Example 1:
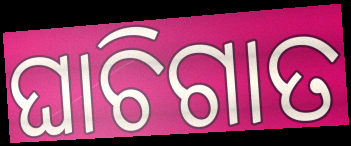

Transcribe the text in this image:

ଘାଚିଗାତ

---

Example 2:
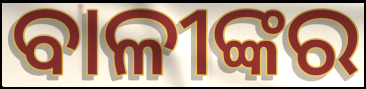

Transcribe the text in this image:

ବାଳୀଙ୍କର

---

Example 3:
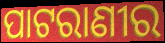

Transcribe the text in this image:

ପାଟରାଣୀର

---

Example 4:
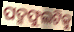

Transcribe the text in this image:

ପଦ୍ମଫୁଲଟିକୁ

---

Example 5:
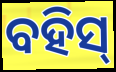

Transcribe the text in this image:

ବହିସ୍